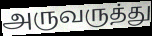
அருவருத்து